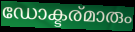
ഡോക്ടര്മാരും